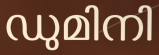
ഡുമിനി